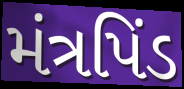
મંત્રપિંડ